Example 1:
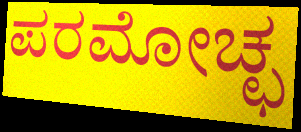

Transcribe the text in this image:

ಪರಮೋಚ್ಛ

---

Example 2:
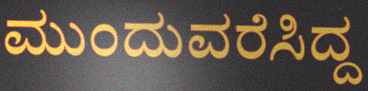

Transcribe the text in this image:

ಮುಂದುವರೆಸಿದ್ದ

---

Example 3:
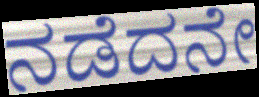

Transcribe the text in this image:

ನಡೆದನೇ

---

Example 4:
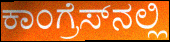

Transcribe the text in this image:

ಕಾಂಗ್ರೆಸ್‌ನಲ್ಲಿ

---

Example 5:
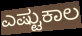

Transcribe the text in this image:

ಎಷ್ಟುಕಾಲ